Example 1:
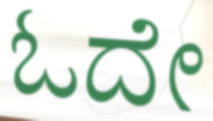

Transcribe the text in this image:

ಓದೇ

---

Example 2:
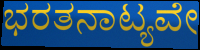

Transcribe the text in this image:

ಭರತನಾಟ್ಯವೇ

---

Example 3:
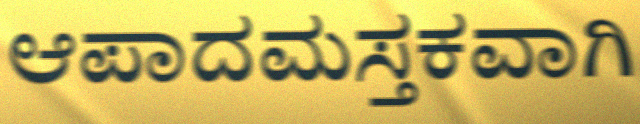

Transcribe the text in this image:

ಆಪಾದಮಸ್ತಕವಾಗಿ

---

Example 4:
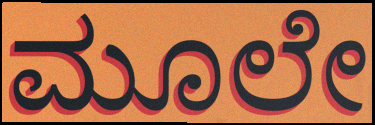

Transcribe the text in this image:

ಮೂಲೇ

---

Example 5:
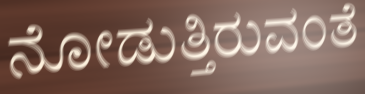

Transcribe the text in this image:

ನೋಡುತ್ತಿರುವಂತೆ